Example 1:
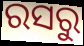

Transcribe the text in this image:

ରସରୁ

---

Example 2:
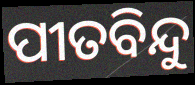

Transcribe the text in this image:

ପୀତବିନ୍ଦୁ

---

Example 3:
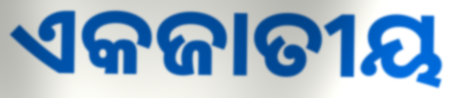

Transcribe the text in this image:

ଏକଜାତୀୟ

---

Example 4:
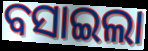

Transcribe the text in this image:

ବସାଇଲା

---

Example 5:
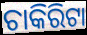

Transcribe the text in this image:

ଚାକିରିଟା